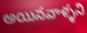
అయినవాళ్ళని